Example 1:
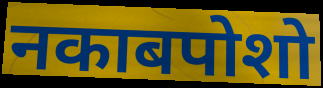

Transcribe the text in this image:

नकाबपोशो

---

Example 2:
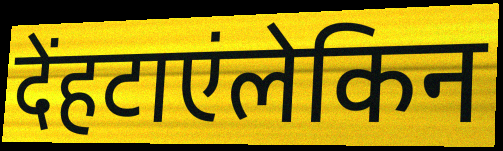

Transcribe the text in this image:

देंहटाएंलेकिन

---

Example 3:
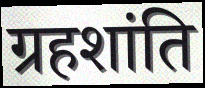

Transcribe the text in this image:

ग्रहशांति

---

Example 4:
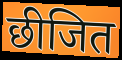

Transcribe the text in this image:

छीजित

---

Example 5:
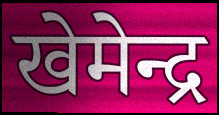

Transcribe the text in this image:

खेमेन्द्र